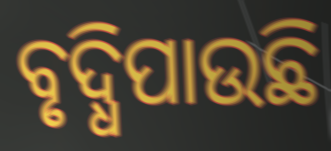
ବୃଦ୍ଧିପାଉଛି